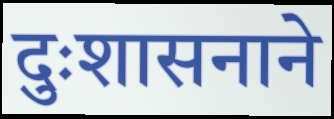
दुःशासनाने